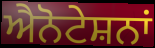
ਐਨੋਟੇਸ਼ਨਾਂ